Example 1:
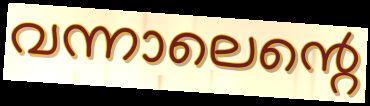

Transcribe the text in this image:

വന്നാലെന്റെ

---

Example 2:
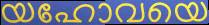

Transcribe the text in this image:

യഹോവയെ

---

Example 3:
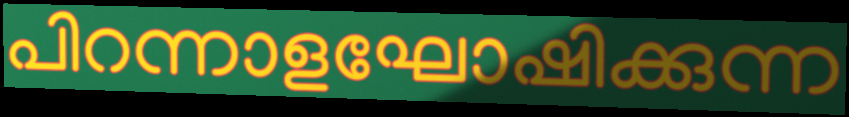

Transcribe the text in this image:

പിറന്നാളഘോഷിക്കുന്ന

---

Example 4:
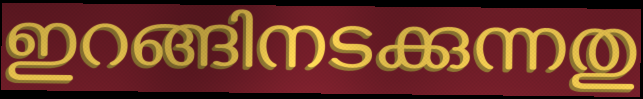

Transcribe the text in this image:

ഇറങ്ങിനടക്കുന്നതു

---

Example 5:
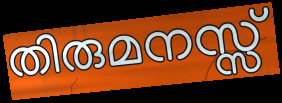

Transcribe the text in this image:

തിരുമനസ്സ്